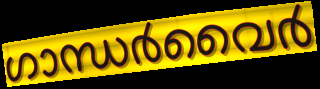
ഗാന്ധർവൈർ